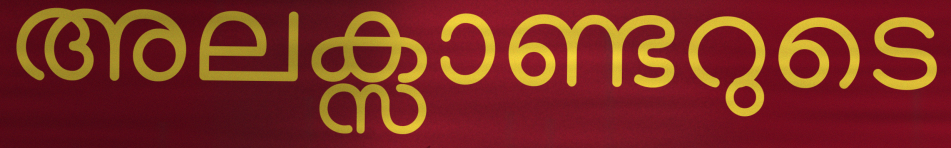
അലക്സാണ്ടറുടെ